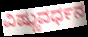
ವಿಷ್ಣುವರ್ಧನ